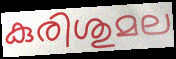
കുരിശുമല